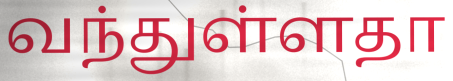
வந்துள்ளதா